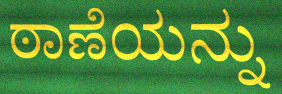
ಠಾಣೆಯನ್ನು